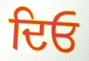
ਦਿਓ